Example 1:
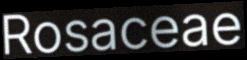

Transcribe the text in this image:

Rosaceae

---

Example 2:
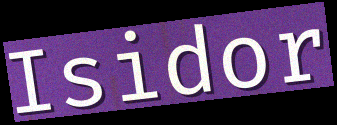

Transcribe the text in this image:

Isidor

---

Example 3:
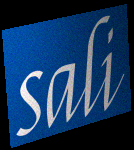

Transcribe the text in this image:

sali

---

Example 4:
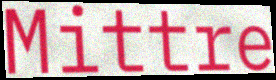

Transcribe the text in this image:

Mittre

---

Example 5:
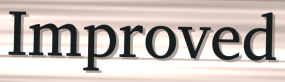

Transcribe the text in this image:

Improved